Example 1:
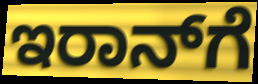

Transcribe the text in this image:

ಇರಾನ್‌ಗೆ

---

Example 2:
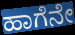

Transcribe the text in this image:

ಹಾಗೆನೇ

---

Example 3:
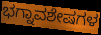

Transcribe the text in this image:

ಭಗ್ನಾವಶೇಷಗಳ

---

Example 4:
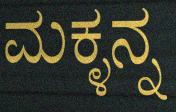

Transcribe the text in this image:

ಮಕ್ಳನ್ನ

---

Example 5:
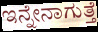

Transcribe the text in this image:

ಇನ್ನೇನಾಗುತ್ತೆ